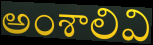
అంశాలివి